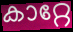
കാറ്റേ